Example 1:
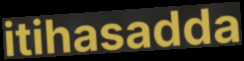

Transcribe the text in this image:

itihasadda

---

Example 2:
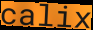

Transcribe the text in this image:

calix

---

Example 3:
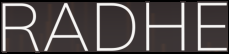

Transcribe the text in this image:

RADHE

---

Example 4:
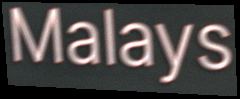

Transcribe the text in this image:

Malays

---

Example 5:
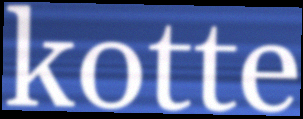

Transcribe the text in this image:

kotte